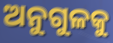
ଅନୁଗୁଳକୁ